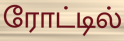
ரோட்டில்